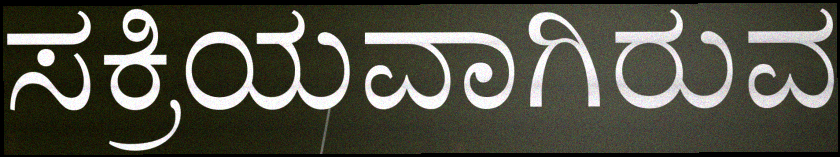
ಸಕ್ರಿಯವಾಗಿರುವ